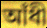
আঁধী